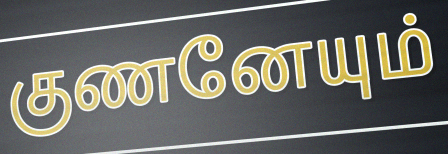
குணனேயும்